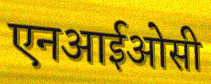
एनआईओसी